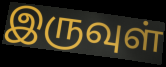
இருவுள்